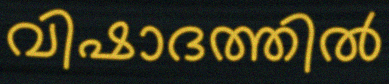
വിഷാദത്തിൽ